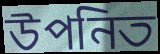
উপনিত